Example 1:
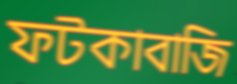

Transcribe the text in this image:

ফটকাবাজি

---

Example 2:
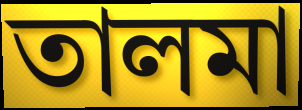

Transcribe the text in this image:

তালমা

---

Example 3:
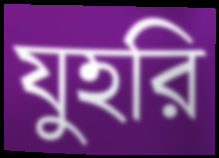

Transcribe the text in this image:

যুহরি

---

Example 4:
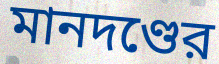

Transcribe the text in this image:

মানদণ্ডের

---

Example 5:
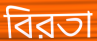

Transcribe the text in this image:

বিরতা